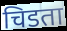
चिडता